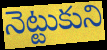
నెట్టుకుని